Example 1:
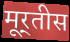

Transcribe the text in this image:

मूर्तीस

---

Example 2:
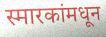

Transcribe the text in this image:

स्मारकांमधून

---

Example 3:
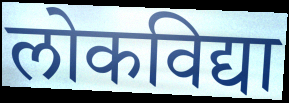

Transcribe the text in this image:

लोकविद्या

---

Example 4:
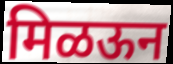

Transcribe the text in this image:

मिळऊन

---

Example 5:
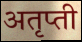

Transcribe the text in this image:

अतृप्ती